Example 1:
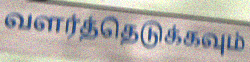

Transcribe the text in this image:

வளர்த்தெடுக்கவும்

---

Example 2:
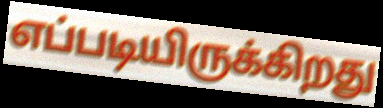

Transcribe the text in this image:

எப்படியிருக்கிறது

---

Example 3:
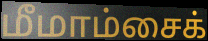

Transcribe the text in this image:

மீமாம்சைக்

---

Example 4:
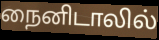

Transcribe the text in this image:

நைனிடாலில்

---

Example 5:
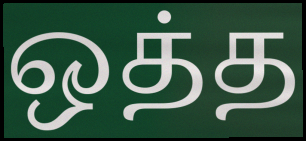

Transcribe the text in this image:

ஒத்த